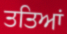
ਤਤਿਆਂ